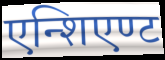
एन्शिएण्ट